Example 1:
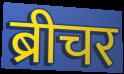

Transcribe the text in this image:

ब्रीचर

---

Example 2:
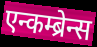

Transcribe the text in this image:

एन्कम्ब्रेन्स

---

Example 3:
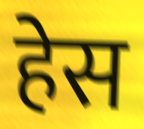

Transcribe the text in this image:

हेस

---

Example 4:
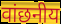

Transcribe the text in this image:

वांछनीय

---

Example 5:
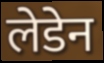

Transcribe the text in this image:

लेडेन